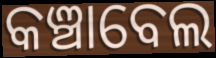
କଞ୍ଚାବେଲ